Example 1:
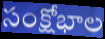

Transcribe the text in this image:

సంక్షోభాల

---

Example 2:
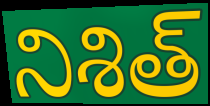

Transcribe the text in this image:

నిశిత్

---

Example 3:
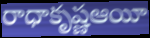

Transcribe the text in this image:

రాధాకృష్ణఆయీ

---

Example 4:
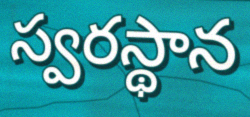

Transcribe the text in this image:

స్వరస్థాన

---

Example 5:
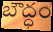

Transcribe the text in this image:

బౌద్ధం